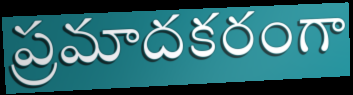
ప్రమాదకరంగా